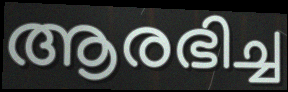
ആരഭിച്ച